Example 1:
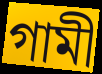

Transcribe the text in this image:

গামী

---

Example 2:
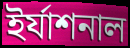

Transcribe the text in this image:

ইর্যাশনাল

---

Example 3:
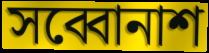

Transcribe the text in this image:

সব্বোনাশ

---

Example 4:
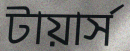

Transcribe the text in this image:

টায়ার্স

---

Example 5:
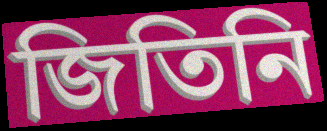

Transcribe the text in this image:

জিতিনি